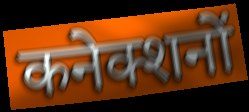
कनेक्शनों